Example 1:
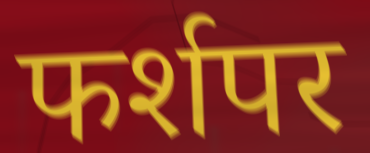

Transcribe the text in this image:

फर्शपर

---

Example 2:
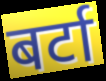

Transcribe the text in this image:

बर्टा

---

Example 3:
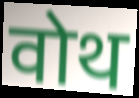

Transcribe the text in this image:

वोथ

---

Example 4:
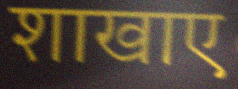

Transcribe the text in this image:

शाखाए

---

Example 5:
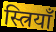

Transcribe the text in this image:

स्‍त्रियाँ